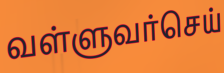
வள்ளுவர்செய்